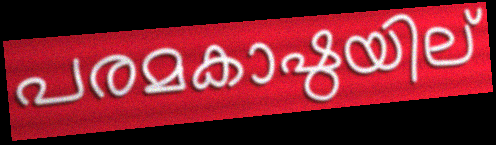
പരമകാഷ്ഠയില്